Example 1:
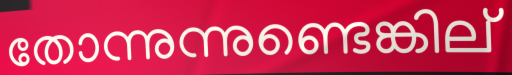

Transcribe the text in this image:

തോന്നുന്നുണ്ടെങ്കില്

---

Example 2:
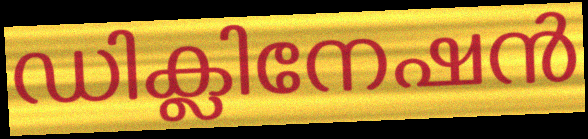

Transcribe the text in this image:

ഡിക്ലിനേഷൻ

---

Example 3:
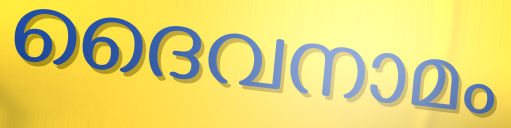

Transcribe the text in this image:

ദൈവനാമം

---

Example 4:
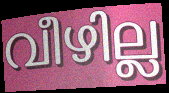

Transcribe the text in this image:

വീഴില്ല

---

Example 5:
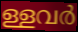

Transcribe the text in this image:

ള്ളവർ